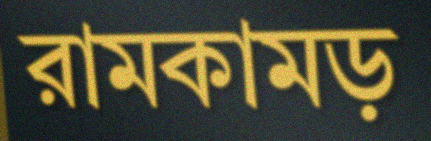
রামকামড়